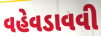
વહેવડાવવી